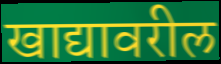
खाद्यावरील